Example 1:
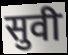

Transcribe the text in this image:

सुवी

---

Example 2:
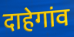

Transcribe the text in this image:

दाहेगांव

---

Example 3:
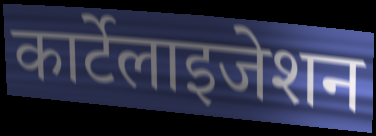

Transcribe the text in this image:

कार्टेलाइजेशन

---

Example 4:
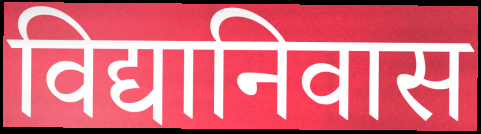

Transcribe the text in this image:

विद्यानिवास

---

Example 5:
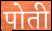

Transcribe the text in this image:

पोती